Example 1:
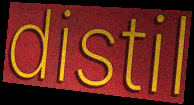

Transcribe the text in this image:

distil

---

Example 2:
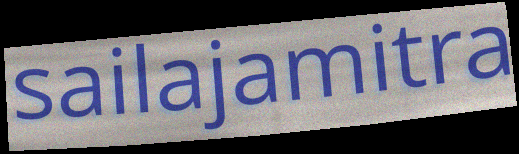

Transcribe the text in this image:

sailajamitra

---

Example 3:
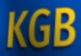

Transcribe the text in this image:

KGB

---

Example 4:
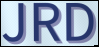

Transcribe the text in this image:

JRD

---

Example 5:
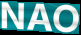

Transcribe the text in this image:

NAO